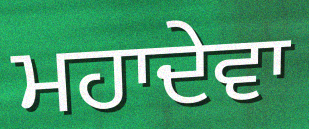
ਮਹਾਦੇਵਾ